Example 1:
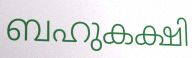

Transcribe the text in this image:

ബഹുകക്ഷി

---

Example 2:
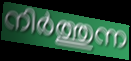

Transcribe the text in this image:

നിർത്തുന്ന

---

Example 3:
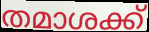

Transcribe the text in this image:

തമാശക്ക്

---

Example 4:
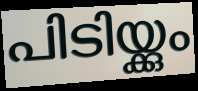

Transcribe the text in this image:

പിടിയ്ക്കും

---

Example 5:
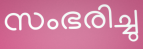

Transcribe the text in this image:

സംഭരിച്ചു